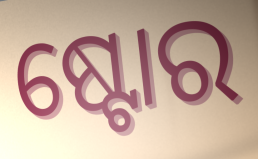
ଷ୍ଟୋର